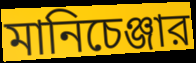
মানিচেঞ্জার